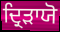
ਦ੍ਰਿੜਾਯੋ